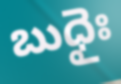
బుధైః